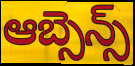
ఆబ్సెన్స్